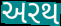
અરથ